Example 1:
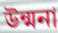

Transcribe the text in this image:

উন্মনা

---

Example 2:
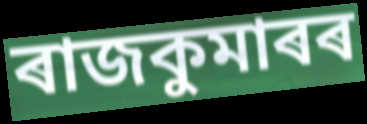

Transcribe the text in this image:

ৰাজকুমাৰৰ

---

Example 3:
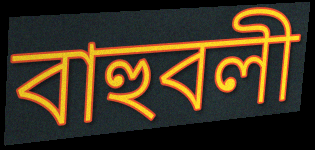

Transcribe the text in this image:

বাহুবলী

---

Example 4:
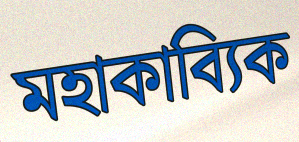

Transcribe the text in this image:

মহাকাব্যিক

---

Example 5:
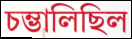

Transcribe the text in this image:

চম্ভালিছিল